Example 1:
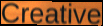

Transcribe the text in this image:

Creative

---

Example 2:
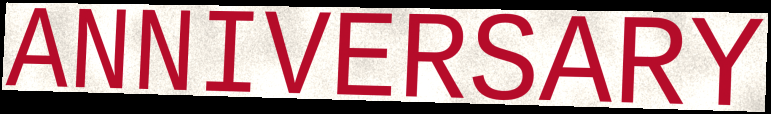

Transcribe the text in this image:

ANNIVERSARY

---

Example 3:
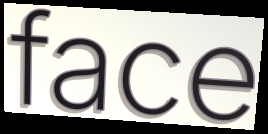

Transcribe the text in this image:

face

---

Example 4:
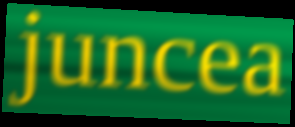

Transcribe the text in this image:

juncea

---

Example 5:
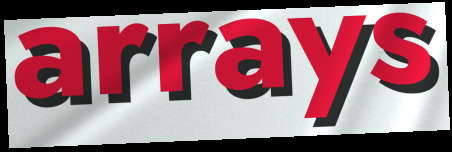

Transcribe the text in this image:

arrays